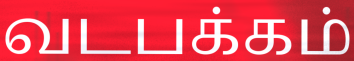
வடபக்கம்